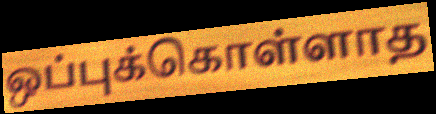
ஒப்புக்கொள்ளாத